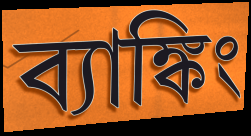
ব্যাঙ্কিং